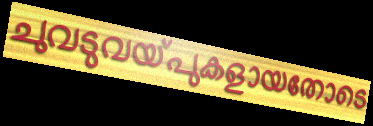
ചുവടുവയ്‌പുകളായതോടെ